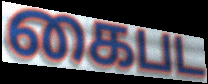
கைபட